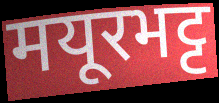
मयूरभट्ट